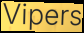
Vipers